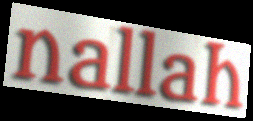
nallah